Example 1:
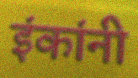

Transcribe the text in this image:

इंकांनी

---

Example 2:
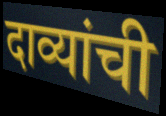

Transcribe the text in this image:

दाव्यांची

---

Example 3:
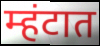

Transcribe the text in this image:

म्हंटात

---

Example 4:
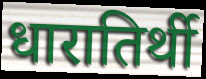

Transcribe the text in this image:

धारातिर्थी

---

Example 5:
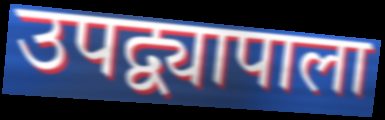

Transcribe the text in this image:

उपद्व्यापाला